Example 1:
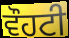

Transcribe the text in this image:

ਵੌਹਟੀ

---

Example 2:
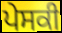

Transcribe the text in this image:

ਪੇਸਕੀ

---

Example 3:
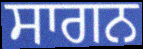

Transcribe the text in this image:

ਸਾਗਨ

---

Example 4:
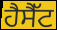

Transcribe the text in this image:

ਹੈਸੈੱਟ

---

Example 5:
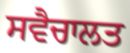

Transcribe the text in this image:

ਸਵੈਚਾਲਤ